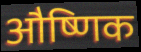
औष्णिक